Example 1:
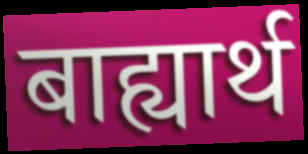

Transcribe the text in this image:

बाह्यार्थ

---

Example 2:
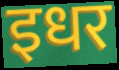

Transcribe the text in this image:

इधर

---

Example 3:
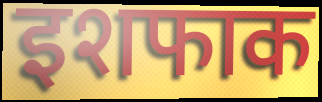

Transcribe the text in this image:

इशफाक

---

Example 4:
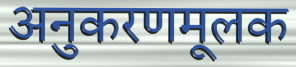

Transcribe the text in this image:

अनुकरणमूलक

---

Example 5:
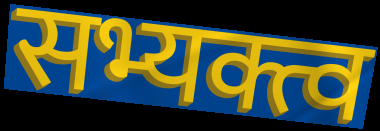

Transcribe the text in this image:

सभ्यक्त्व